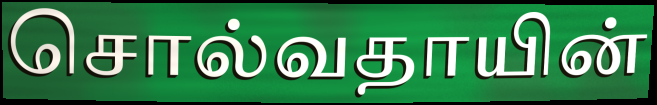
சொல்வதாயின்